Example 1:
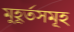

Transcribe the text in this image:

মুহূৰ্তসমূহ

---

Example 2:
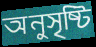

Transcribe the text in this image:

অনুসৃষ্টি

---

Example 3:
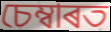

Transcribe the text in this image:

চেম্বাৰত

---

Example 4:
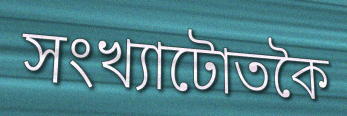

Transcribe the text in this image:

সংখ্যাটোতকৈ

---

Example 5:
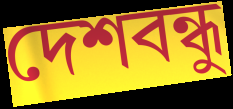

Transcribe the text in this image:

দেশবন্ধু